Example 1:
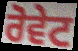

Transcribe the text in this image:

ਰੋਵੇਟ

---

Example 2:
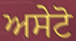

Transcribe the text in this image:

ਅਸੇਟੋ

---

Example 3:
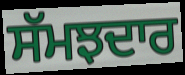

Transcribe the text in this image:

ਸੱਮਝਦਾਰ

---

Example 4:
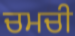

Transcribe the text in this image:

ਚਮਚੀ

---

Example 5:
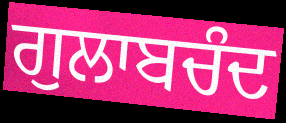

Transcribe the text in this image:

ਗੁਲਾਬਚੰਦ